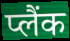
प्लैंक